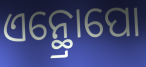
ଏନ୍ଥ୍ରୋପୋ